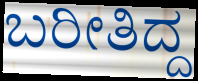
ಬರೀತಿದ್ದ